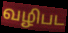
வழிபட